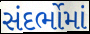
સંદર્ભોમાં